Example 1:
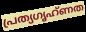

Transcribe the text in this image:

പ്രത്യഗൃഹ്ണത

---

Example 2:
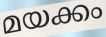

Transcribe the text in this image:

മയക്കം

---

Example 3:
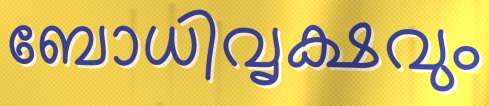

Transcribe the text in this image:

ബോധിവൃക്ഷവും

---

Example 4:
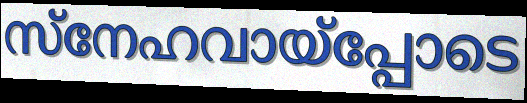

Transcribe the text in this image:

സ്നേഹവായ്പ്പോടെ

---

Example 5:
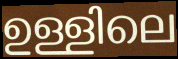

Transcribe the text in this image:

ഉള്ളിലെ